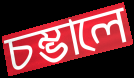
চম্ভালে